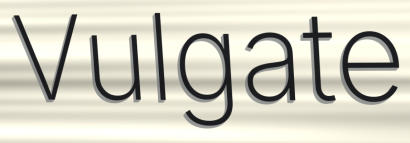
Vulgate